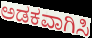
ಅಡಕವಾಗಿಸಿ